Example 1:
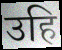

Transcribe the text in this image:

उहि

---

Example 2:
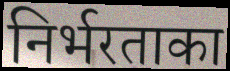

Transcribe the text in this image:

निर्भरताका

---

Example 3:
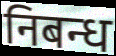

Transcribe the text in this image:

निबन्ध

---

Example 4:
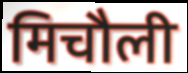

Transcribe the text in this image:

मिचौली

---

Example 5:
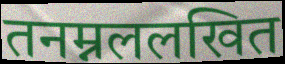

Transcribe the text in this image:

तनम्नललखित